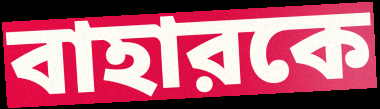
বাহারকে